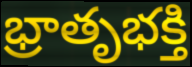
భ్రాతృభక్తి